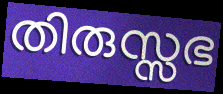
തിരുസ്സഭ